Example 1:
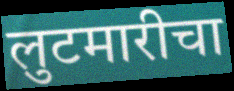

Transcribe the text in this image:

लुटमारीचा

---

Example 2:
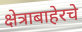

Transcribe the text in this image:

क्षेत्राबाहेरचे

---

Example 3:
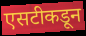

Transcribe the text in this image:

एसटीकडून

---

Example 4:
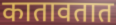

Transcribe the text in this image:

कातावतात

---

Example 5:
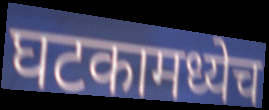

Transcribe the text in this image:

घटकामध्येच